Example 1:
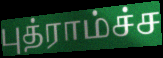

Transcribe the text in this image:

புத்ராம்ச்ச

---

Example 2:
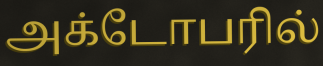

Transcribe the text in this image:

அக்டோபரில்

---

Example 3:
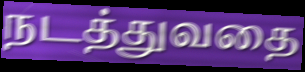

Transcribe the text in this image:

நடத்துவதை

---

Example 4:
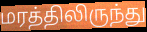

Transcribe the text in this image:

மரத்திலிருந்து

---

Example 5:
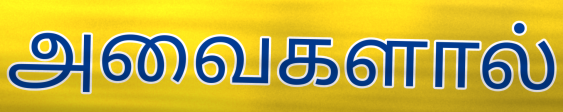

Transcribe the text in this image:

அவைகளால்